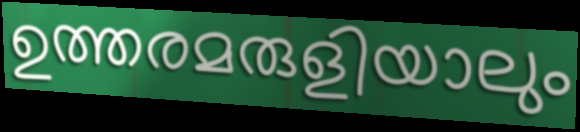
ഉത്തരമരുളിയാലും